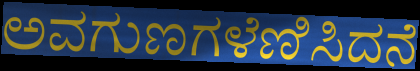
ಅವಗುಣಗಳೆಣಿಸಿದನೆ